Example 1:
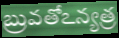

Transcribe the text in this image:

బ్రువతోఽన్యత్ర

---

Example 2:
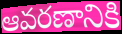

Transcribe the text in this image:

ఆవరణానికి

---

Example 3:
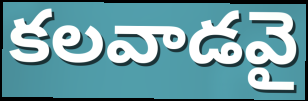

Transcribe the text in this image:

కలవాడవై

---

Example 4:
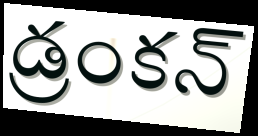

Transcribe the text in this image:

డ్రంకన్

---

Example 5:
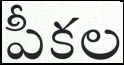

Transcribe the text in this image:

పీకల